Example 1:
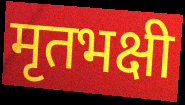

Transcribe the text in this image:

मृतभक्षी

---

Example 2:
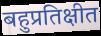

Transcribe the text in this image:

बहुप्रतिक्षीत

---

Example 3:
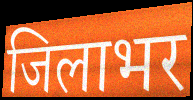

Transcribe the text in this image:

जिलाभर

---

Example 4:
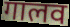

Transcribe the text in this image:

गालव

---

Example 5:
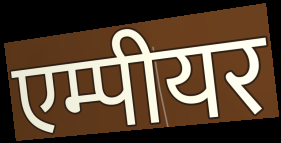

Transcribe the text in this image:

एम्पीयर